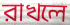
রাখলে